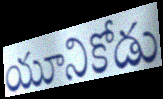
యూనికోడు